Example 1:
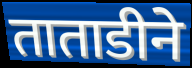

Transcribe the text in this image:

ताताडीने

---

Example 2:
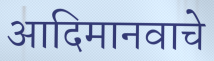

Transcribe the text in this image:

आदिमानवाचे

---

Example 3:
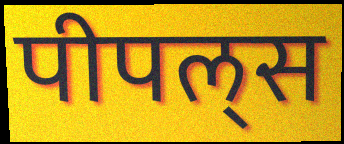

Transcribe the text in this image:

पीपल्स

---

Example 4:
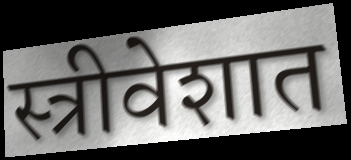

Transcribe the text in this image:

स्त्रीवेशात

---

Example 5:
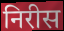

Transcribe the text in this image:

निरीस